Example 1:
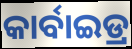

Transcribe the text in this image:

କାର୍ବାଇଡ୍ର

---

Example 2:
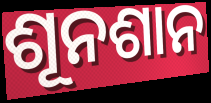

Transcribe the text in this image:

ଶୂନଶାନ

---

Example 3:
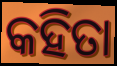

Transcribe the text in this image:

କହିତା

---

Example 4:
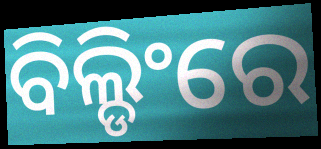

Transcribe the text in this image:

ବିଲ୍ଡିଂରେ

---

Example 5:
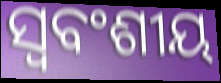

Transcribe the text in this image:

ସ୍ଵବଂଶୀୟ